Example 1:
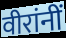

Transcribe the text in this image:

वीरांनीं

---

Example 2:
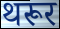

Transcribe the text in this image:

थरूर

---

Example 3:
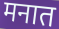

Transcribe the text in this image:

मनात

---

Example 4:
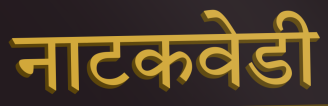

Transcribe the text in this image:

नाटकवेडी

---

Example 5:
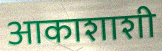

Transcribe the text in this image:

आकाशाशी